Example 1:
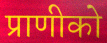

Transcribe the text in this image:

प्राणीको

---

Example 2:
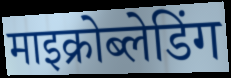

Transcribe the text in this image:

माइक्रोब्लेडिंग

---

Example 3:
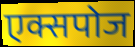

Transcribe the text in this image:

एक्सपोज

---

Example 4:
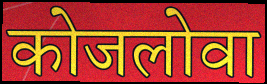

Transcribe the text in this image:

कोजलोवा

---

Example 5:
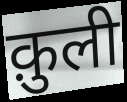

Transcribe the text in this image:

क़ुली